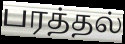
பரத்தல்